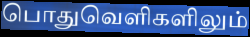
பொதுவெளிகளிலும்